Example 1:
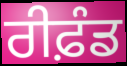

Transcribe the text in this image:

ਰੀਫ਼ੰਡ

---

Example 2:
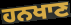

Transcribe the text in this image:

ਹਨਖਾਣ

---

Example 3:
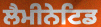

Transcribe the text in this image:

ਲੈਮੀਨੇਟਿਡ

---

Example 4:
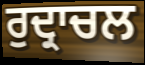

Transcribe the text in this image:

ਰੁਦ੍ਰਾਚਲ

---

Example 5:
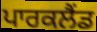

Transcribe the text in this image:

ਪਾਰਕਲੈਂਡ